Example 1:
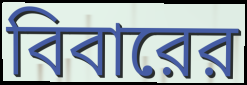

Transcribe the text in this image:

বিবারের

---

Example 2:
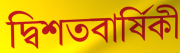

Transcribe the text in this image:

দ্বিশতবার্ষিকী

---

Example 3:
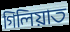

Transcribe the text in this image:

গিলিয়াত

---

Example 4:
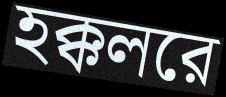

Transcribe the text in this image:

হক্কলরে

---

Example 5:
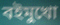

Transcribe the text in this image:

বইমুখো